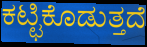
ಕಟ್ಟಿಕೊಡುತ್ತದೆ